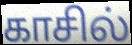
காசில்